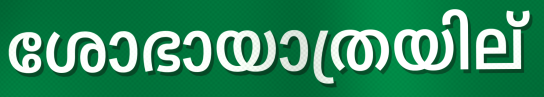
ശോഭായാത്രയില്